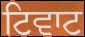
ਟਿਵਾਟ